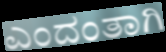
ಎಂದಂತಾಗಿ